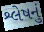
શ્લેષનું